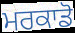
ਮਰਕਾਡੋ